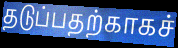
தடுப்பதற்காகச்